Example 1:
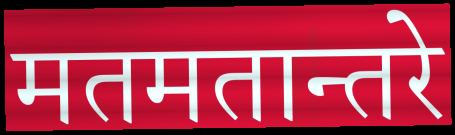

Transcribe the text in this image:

मतमतान्तरे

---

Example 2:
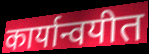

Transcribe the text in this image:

कार्यान्वयीत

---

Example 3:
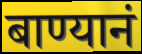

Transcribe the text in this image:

बाण्यानं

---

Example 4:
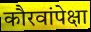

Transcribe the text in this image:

कौरवांपेक्षा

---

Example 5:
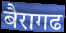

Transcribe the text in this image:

बैरागढ